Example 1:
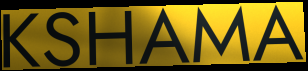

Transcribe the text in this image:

KSHAMA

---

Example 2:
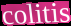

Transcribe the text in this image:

colitis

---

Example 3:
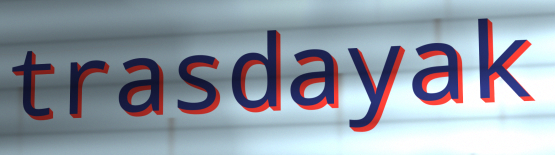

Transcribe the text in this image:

trasdayak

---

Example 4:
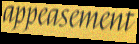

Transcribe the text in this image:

appeasement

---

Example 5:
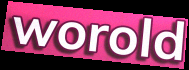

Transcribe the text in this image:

worold